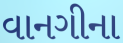
વાનગીના